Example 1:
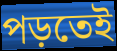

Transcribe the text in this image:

পড়তেই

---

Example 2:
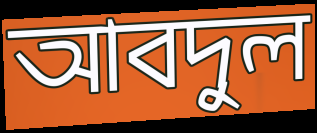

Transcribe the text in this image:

আবদুল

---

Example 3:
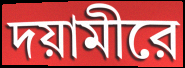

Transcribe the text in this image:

দয়ামীরে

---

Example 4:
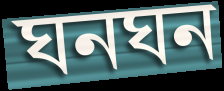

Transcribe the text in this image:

ঘনঘন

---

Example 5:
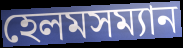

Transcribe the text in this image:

হেলমসম্যান